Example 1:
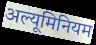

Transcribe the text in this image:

अल्यूमिनियम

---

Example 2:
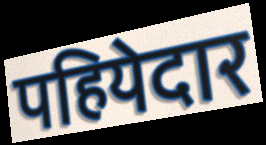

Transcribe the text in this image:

पहियेदार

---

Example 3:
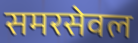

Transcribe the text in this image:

समरसेवल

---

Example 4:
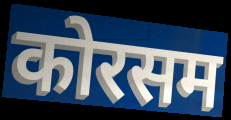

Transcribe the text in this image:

कोरसम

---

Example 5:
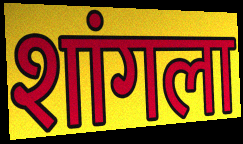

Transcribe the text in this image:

शांगला